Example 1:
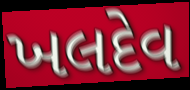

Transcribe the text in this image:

ખલદેવ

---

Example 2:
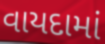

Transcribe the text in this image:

વાયદામાં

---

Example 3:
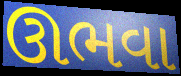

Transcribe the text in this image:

ઊભવા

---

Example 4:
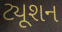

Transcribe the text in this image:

ટ્યૂશન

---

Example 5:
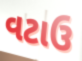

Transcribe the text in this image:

વટાઉ